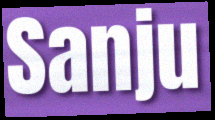
Sanju